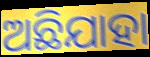
ଅଛିଯାହା